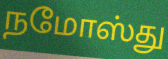
நமோஸ்து